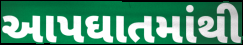
આપઘાતમાંથી